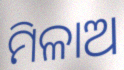
ମିଳାଅ